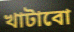
খাটাবো